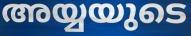
അയ്യയുടെ